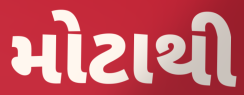
મોટાથી